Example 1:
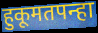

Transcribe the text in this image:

हुकूमतपन्हा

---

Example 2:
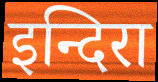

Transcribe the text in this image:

इन्दिरा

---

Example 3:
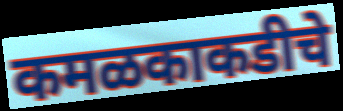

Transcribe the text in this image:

कमळकाकडीचे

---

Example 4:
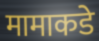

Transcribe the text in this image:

मामाकडे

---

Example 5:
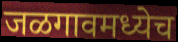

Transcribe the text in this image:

जळगावमध्येच